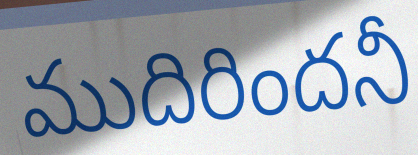
ముదిరిందనీ